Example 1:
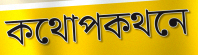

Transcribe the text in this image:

কথোপকথনে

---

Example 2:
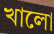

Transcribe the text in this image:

খালো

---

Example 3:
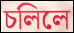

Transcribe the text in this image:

চলিলে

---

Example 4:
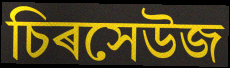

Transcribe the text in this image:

চিৰসেউজ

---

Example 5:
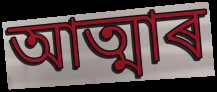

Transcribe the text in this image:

আত্মাৰ